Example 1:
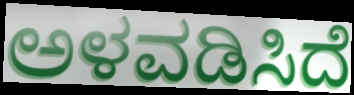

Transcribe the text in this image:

ಅಳವಡಿಸಿದೆ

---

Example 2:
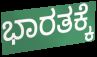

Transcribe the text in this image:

ಭಾರತಕ್ಕೆ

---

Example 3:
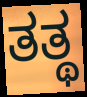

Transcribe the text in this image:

ತತ್ಥ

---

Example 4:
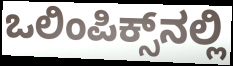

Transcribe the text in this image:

ಒಲಿಂಪಿಕ್ಸ್‌ನಲ್ಲಿ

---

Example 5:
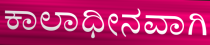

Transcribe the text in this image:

ಕಾಲಾಧೀನವಾಗಿ